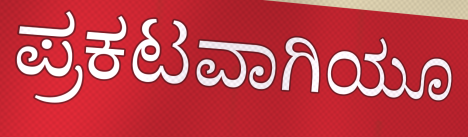
ಪ್ರಕಟವಾಗಿಯೂ